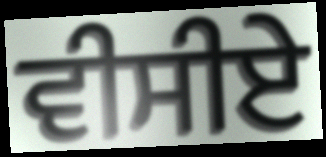
ਵੀਸੀਏ